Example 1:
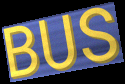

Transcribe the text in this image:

BUS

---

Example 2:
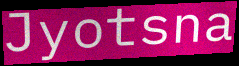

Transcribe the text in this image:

Jyotsna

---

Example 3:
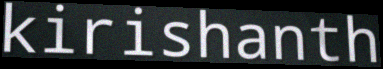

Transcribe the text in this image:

kirishanth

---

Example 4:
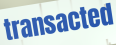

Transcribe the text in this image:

transacted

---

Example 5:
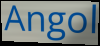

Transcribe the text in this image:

Angol